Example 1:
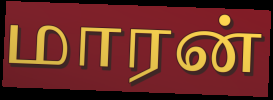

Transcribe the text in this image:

மாரன்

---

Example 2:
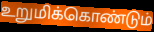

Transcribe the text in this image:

உறுமிக்கொண்டும்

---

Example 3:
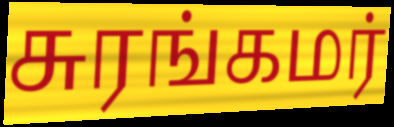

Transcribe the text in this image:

சுரங்கமர்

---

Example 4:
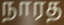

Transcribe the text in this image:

நாரத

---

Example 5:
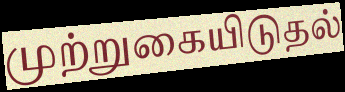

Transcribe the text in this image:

முற்றுகையிடுதல்